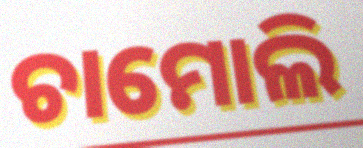
ଚାମୋଲି